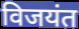
विजयंत